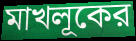
মাখলূকের